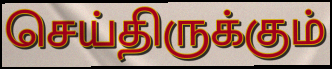
செய்திருக்கும்